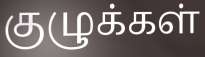
குழுக்கள்